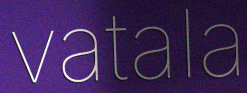
vatala